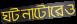
ঘটনাটোৱেও